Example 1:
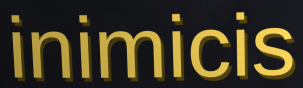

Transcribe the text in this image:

inimicis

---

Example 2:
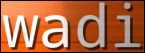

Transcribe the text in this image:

wadi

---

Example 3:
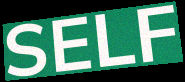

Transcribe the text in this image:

SELF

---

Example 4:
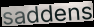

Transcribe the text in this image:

saddens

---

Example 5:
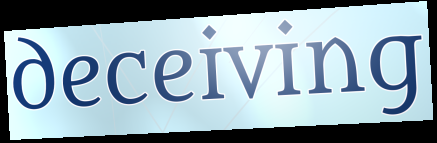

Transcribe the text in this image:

deceiving